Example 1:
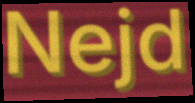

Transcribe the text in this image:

Nejd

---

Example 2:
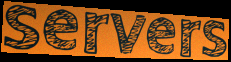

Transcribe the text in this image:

servers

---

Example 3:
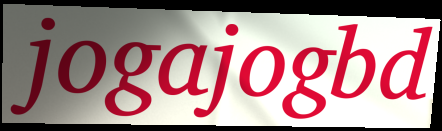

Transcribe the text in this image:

jogajogbd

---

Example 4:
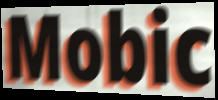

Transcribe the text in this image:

Mobic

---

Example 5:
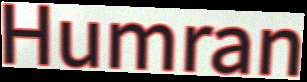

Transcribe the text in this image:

Humran